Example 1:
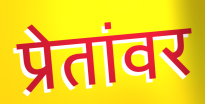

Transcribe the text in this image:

प्रेतांवर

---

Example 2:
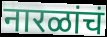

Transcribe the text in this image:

नारळांचं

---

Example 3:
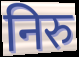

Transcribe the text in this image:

निरु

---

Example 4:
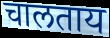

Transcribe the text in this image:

चालताय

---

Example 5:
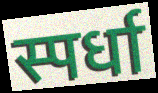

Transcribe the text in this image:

स्पर्धा